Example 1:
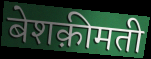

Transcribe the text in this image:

बेशक़ीमती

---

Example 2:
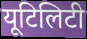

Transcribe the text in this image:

यूटिलिटी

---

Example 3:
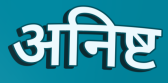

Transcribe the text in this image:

अनिष्ट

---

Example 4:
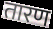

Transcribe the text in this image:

तारण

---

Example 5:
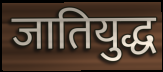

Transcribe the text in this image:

जातियुद्ध